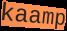
kaamp